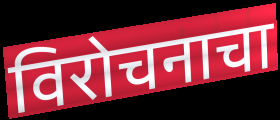
विरोचनाचा